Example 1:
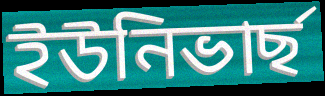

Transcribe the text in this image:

ইউনিভাৰ্ছ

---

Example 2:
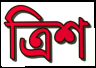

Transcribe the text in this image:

ত্ৰিশ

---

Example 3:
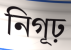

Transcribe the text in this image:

নিগূঢ়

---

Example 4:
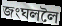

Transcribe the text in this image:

জংঘললৈ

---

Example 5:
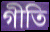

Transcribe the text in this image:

গীতি